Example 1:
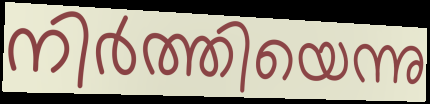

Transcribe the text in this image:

നിർത്തിയെന്നു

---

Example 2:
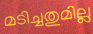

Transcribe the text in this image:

മടിച്ചതുമില്ല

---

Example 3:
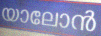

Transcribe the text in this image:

യാലോൻ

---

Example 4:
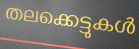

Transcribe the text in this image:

തലക്കെട്ടുകൾ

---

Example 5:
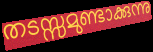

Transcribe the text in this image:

തടസ്സമുണ്ടാക്കുന്നു